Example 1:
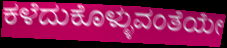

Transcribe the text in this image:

ಕಳೆದುಕೊಳ್ಳುವಂತೆಯೇ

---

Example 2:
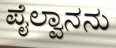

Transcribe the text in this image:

ಪೈಲ್ವಾನನು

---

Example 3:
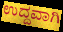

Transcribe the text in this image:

ಉದ್ದವಾಗಿ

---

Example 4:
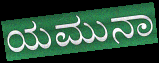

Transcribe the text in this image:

ಯಮುನಾ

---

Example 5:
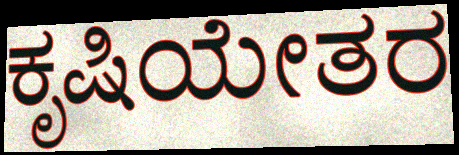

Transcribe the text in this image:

ಕೃಷಿಯೇತರ